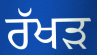
ਰੱਖੜ